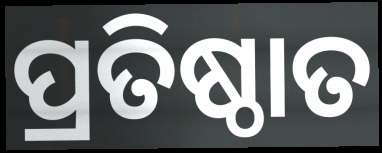
ପ୍ରତିଷ୍ଠାତ